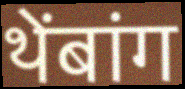
थेंबांग